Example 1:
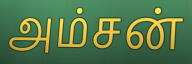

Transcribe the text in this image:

அம்சன்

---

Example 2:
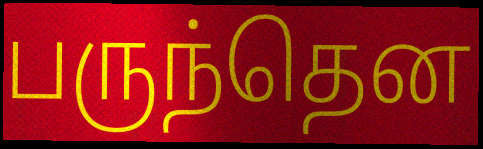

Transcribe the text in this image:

பருந்தென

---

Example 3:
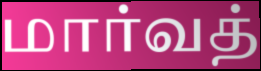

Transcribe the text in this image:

மார்வத்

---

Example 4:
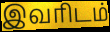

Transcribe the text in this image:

இவரிடம்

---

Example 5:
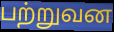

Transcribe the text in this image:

பற்றுவன